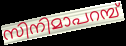
സിനിമാപറമ്പ്